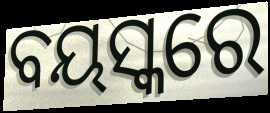
ବୟସ୍କରେ